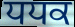
ਧਧਕ